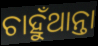
ଚାହୁଁଥାନ୍ତା